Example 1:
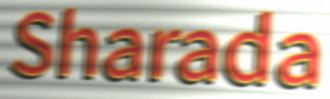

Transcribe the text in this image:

Sharada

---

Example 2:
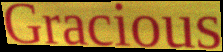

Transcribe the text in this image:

Gracious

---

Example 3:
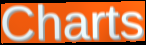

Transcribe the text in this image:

Charts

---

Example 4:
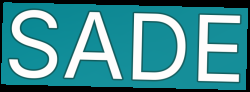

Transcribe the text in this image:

SADE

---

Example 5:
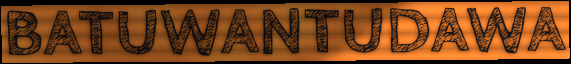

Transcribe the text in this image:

BATUWANTUDAWA